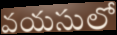
వయసులో